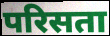
परिसता